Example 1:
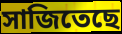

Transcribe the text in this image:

সাজিতেছে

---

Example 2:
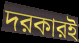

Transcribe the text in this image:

দরকারই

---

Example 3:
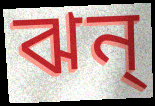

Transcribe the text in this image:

ঝন্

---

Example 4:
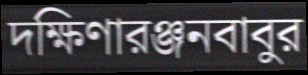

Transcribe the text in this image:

দক্ষিণারঞ্জনবাবুর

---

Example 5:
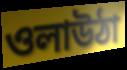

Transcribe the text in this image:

ওলাউঠা